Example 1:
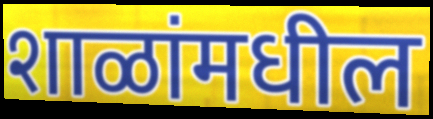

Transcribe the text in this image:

शाळांमधील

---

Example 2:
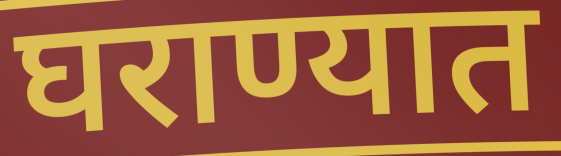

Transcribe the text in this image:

घराण्यात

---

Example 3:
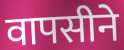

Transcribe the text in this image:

वापसीने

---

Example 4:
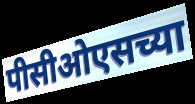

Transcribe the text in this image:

पीसीओएसच्या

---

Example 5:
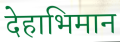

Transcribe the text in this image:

देहाभिमान